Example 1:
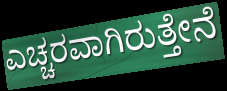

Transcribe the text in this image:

ಎಚ್ಚರವಾಗಿರುತ್ತೇನೆ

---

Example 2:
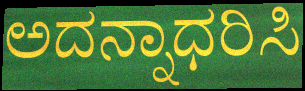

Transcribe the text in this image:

ಅದನ್ನಾಧರಿಸಿ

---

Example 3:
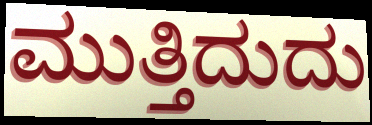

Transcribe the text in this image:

ಮುತ್ತಿದುದು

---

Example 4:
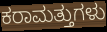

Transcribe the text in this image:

ಕರಾಮತ್ತುಗಳು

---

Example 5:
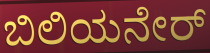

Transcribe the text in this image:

ಬಿಲಿಯನೇರ್